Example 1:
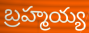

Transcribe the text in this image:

బ్రహ్మయ్య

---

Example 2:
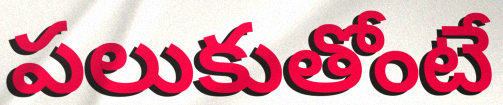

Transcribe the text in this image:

పలుకుతోంటే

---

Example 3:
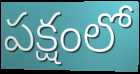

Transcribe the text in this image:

పక్షంలో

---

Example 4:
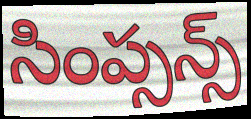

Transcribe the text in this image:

సింప్సన్స్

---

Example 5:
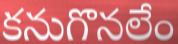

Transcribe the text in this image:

కనుగొనలేం